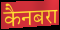
कैनबरा